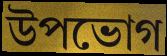
উপভোগ